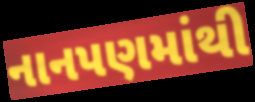
નાનપણમાંથી